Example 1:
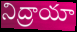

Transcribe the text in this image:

నిద్రాయా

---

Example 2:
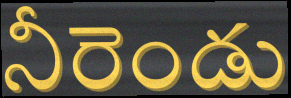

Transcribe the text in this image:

నీరెండు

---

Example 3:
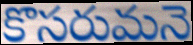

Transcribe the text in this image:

కొసరుమనె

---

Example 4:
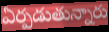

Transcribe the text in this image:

ఏర్పడుతున్నారు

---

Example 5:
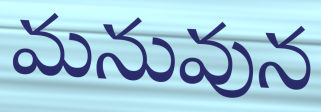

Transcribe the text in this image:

మనువున